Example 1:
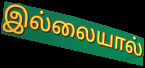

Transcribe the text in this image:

இல்லையால்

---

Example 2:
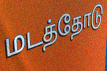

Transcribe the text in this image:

மடத்தோடு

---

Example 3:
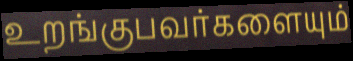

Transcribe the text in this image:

உறங்குபவர்களையும்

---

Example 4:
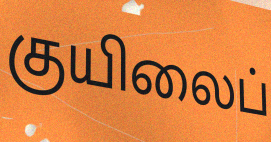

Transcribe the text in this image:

குயிலைப்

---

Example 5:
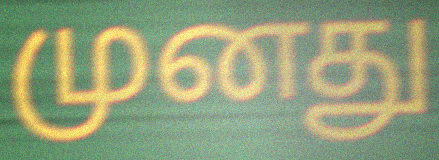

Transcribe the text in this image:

முனது